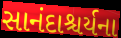
સાનંદાશ્ચર્યના